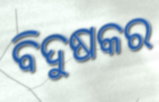
ବିଦୁଷକର